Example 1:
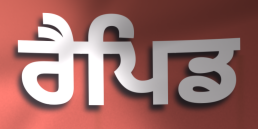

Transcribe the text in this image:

ਰੈਪਿਡ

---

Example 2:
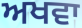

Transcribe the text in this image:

ਅਖਵਾ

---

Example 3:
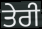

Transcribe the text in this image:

ਤੇਰੀ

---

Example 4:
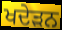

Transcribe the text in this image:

ਖਦੇੜਨ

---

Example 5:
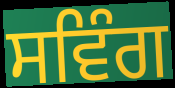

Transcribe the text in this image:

ਸਵਿੰਗ